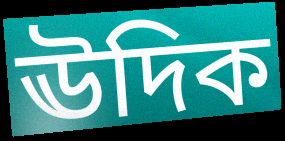
ঊদিক